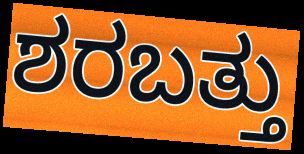
ಶರಬತ್ತು